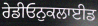
ਰੇਡੀਓਨੁਕਲਾਈਡ